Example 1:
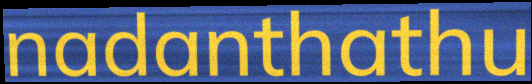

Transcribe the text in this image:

nadanthathu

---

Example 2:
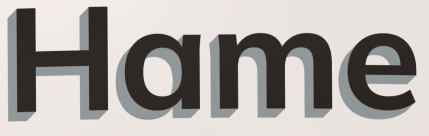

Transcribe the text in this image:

Hame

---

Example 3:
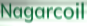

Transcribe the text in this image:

Nagarcoil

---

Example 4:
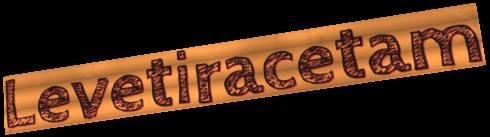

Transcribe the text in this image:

Levetiracetam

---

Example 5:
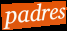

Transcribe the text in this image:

padres